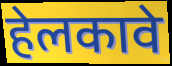
हेलकावे